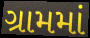
ગ્રામમાં